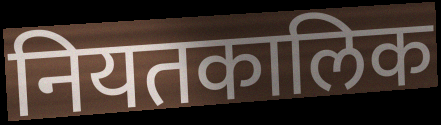
नियतकालिक